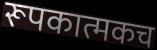
रूपकात्मकच